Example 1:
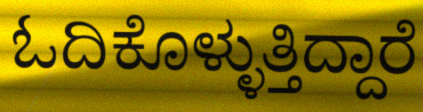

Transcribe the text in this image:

ಓದಿಕೊಳ್ಳುತ್ತಿದ್ದಾರೆ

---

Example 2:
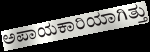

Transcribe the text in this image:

ಅಪಾಯಕಾರಿಯಾಗಿತ್ತು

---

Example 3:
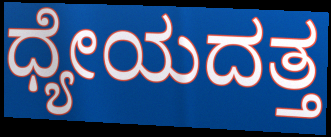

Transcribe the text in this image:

ಧ್ಯೇಯದತ್ತ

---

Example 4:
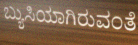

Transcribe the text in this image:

ಬ್ಯುಸಿಯಾಗಿರುವಂತೆ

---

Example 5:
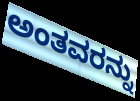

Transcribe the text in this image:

ಅಂತವರನ್ನು